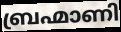
ബ്രഹ്മാണി